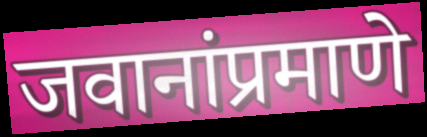
जवानांप्रमाणे